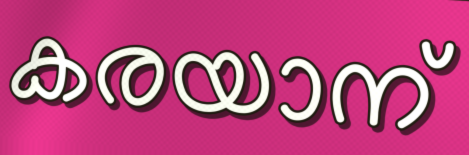
കരയാന്